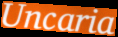
Uncaria